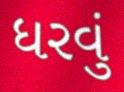
ધરવું